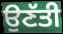
ਉਣੱਤੀ